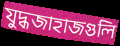
যুদ্ধজাহাজগুলি